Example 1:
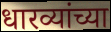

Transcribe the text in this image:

धारव्यांच्या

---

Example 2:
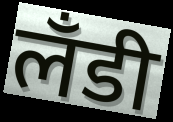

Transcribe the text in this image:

लँडी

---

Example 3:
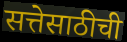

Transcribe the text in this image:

सत्तेसाठीची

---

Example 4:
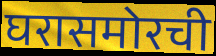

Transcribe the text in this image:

घरासमोरची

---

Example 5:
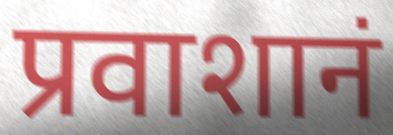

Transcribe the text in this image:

प्रवाशानं